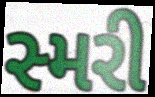
સ્મરી